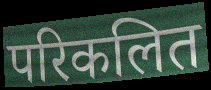
परिकलित